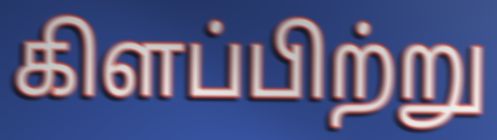
கிளப்பிற்று